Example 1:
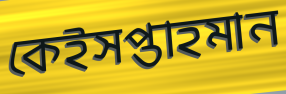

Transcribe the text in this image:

কেইসপ্তাহমান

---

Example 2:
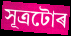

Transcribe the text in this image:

সূত্ৰটোৰ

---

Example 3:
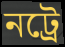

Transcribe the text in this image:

নট্ৰে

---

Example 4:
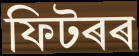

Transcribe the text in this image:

ফিটৰৰ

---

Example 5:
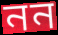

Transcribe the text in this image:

নন